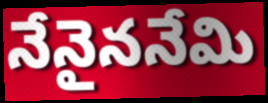
నేనైననేమి